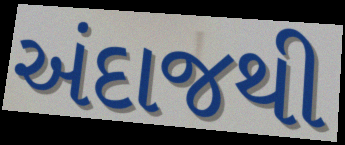
અંદાજથી